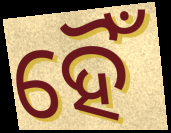
ହୈଁ